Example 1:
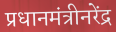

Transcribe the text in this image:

प्रधानमंत्रीनरेंद्र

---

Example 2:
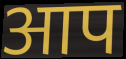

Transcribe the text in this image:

आप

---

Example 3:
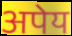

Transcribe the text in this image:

अपेय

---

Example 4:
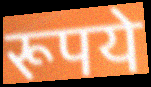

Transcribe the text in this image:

रूपये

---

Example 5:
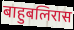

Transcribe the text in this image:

बाहुबलिरास